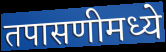
तपासणीमध्ये